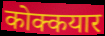
कोक्कयार